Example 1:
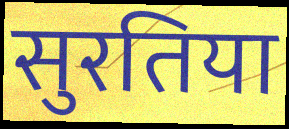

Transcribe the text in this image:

सुरतिया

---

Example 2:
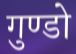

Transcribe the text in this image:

गुण्डो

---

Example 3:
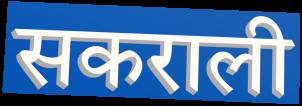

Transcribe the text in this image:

सकराली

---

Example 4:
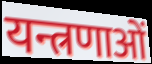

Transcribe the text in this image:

यन्त्रणाओं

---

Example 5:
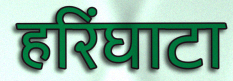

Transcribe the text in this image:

हरिंघाटा